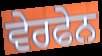
ਵੇਰਫੇਨ